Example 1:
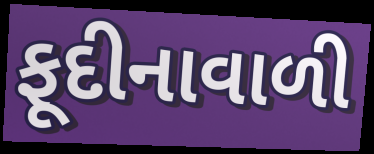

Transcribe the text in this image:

ફૂદીનાવાળી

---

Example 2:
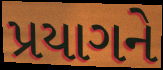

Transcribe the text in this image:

પ્રયાગને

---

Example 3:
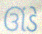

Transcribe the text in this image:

ઊંડે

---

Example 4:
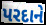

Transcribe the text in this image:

પરદાને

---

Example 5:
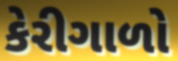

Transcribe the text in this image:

કેરીગાળો